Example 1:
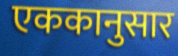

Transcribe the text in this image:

एककानुसार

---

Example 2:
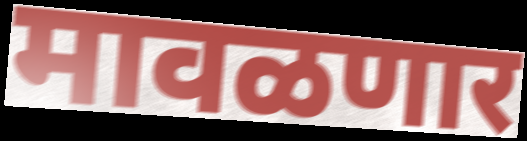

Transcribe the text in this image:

मावळणार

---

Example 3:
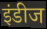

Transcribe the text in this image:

इंडीज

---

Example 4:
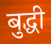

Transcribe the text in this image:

बुद्धी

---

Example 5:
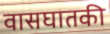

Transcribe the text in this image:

वासघातकी